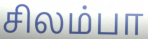
சிலம்பா